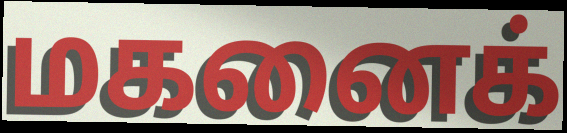
மகனைக்